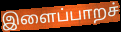
இளைப்பாறச்